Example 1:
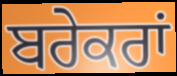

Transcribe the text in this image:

ਬਰੇਕਰਾਂ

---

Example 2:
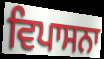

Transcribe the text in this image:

ਵਿਪਾਸਨਾ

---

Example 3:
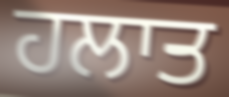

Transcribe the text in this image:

ਹਲਾਤ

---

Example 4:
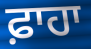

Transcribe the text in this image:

ਫ਼ਾਹਾ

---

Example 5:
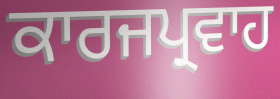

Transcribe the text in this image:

ਕਾਰਜਪ੍ਰਵਾਹ